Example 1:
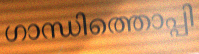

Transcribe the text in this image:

ഗാന്ധിത്തൊപ്പി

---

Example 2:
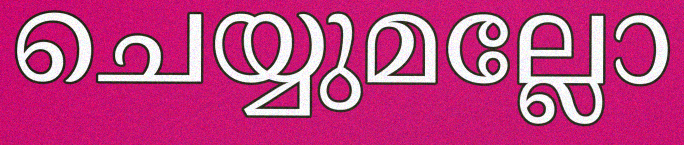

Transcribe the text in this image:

ചെയ്യുമല്ലോ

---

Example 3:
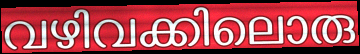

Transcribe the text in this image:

വഴിവക്കിലൊരു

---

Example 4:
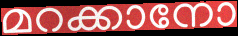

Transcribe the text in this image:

മറക്കാനോ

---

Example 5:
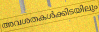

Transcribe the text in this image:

അവശതകൾക്കിടയിലും